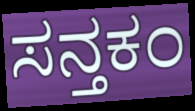
ಸನ್ತಕಂ